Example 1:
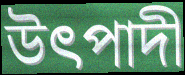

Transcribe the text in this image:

উৎপাদী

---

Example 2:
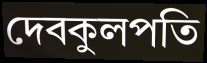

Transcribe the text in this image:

দেবকুলপতি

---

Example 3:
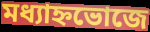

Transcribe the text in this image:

মধ্যাহ্নভোজে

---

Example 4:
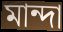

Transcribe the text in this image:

মান্দা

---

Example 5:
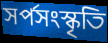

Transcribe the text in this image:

সর্পসংস্কৃতি